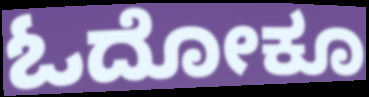
ಓದೋಕೂ